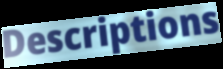
Descriptions